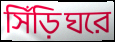
সিঁড়িঘরে